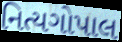
નિત્યગોપાલ